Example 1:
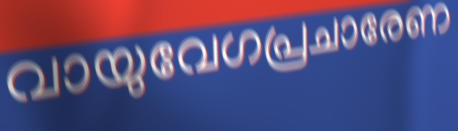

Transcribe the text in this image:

വായുവേഗപ്രചാരേണ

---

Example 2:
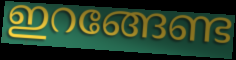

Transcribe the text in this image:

ഇറങ്ങേണ്ട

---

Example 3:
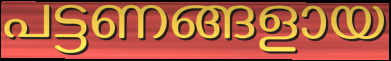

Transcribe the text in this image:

പട്ടണങ്ങളായ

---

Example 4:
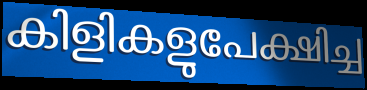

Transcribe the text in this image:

കിളികളുപേക്ഷിച്ച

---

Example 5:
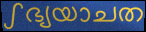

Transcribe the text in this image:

ഽഭ്യയാചത